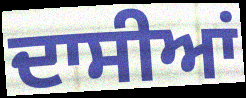
ਦਾਸੀਆਂ